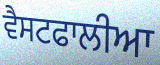
ਵੈਸਟਫਾਲੀਆ